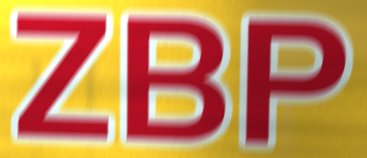
ZBP